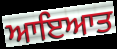
ਆਇਆਤ